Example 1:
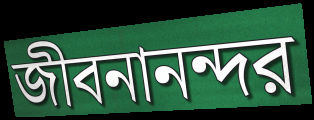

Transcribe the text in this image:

জীবনানন্দর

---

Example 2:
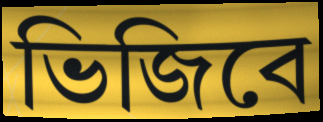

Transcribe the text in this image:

ভিজিবে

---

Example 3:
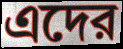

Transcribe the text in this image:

এদের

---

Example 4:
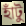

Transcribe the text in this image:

হাঁটু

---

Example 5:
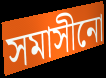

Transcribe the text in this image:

সমাসীনো